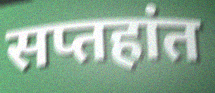
सप्तहांत